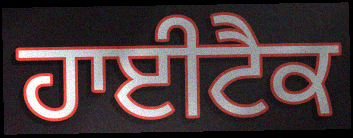
ਹਾਈਟੈਕ